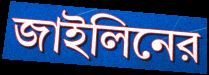
জাইলিনের